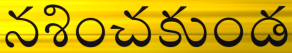
నశించకుండ